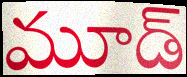
మూడ్